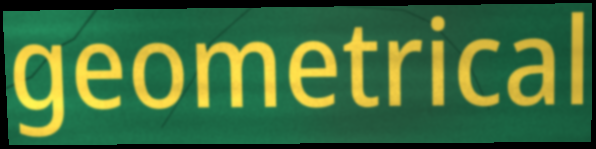
geometrical